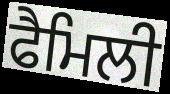
ਫੈਮਿਲੀ